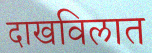
दाखविलात